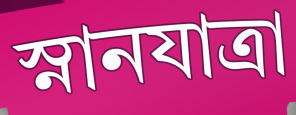
স্নানযাত্রা